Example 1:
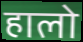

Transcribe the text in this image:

हालो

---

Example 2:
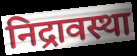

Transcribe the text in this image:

निद्रावस्था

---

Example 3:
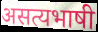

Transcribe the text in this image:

असत्यभाषी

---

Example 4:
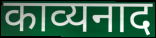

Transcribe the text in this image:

काव्यनाद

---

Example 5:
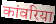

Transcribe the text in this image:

कांवरिया